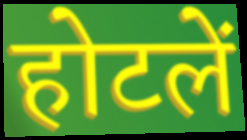
होटलें